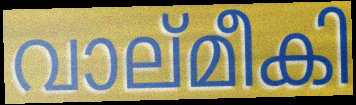
വാല്മീകി